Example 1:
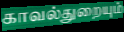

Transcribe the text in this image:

காவல்துறையும்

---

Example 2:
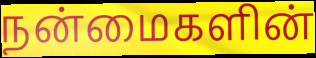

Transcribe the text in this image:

நன்மைகளின்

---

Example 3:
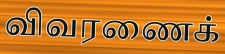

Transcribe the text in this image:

விவரணைக்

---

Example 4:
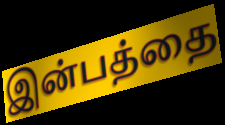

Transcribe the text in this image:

இன்பத்தை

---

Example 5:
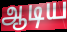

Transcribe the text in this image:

ஆடிய